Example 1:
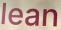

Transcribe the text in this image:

lean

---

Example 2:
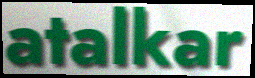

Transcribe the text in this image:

atalkar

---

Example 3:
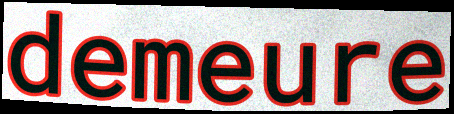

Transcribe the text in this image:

demeure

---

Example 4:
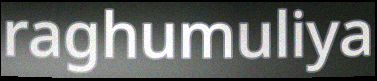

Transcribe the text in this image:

raghumuliya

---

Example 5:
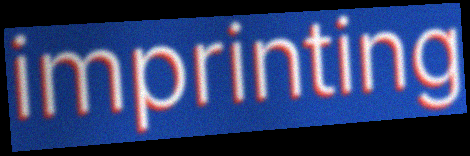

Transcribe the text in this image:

imprinting